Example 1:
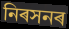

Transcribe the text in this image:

নিৰসনৰ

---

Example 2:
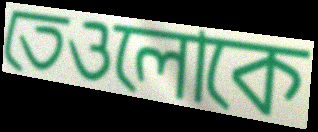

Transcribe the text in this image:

তেওলোকে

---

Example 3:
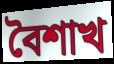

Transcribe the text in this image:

বৈশাখ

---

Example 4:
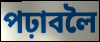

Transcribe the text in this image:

পঢ়াবলৈ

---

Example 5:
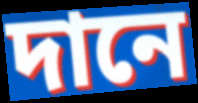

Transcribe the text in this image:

দানে